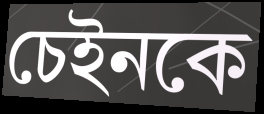
চেইনকে